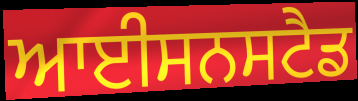
ਆਈਸਨਸਟੈਡ